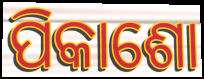
ପିକାଶୋ